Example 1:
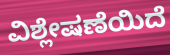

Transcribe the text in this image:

ವಿಶ್ಲೇಷಣೆಯಿದೆ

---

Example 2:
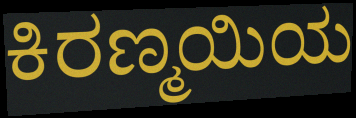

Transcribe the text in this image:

ಕಿರಣ್ಮಯಿಯ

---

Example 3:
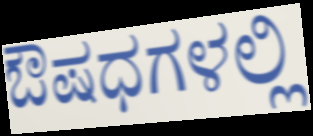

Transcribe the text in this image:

ಔಷಧಗಳಲ್ಲಿ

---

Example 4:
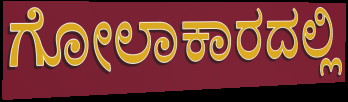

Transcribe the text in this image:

ಗೋಲಾಕಾರದಲ್ಲಿ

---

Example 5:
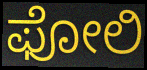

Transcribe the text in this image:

ಫೋಲಿ